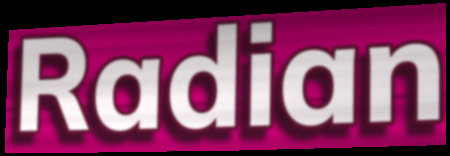
Radian